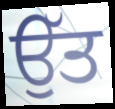
ਉੱਤ